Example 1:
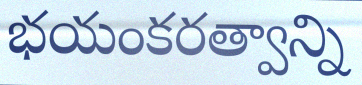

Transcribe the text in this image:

భయంకరత్వాన్ని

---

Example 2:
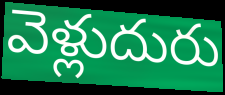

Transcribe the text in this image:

వెళ్లుదురు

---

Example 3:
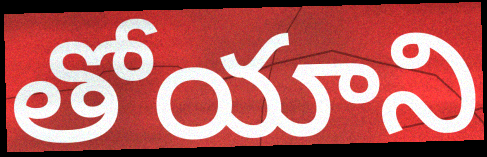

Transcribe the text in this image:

తోయాని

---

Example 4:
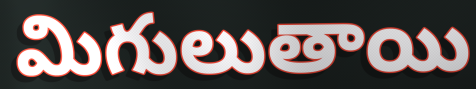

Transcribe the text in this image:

మిగులుతాయి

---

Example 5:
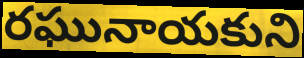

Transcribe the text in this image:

రఘునాయకుని